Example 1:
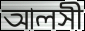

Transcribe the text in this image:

আলসী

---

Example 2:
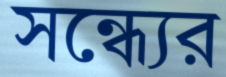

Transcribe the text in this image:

সন্ধ্যের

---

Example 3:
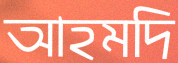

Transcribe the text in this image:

আহমদি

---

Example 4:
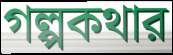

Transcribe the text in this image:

গল্পকথার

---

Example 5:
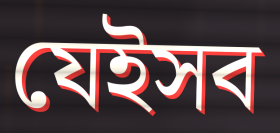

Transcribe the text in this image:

যেইসব